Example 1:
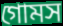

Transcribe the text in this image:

গোমস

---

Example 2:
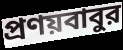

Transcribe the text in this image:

প্রণয়বাবুর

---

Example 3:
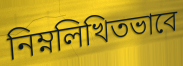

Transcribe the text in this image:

নিম্নলিখিতভাবে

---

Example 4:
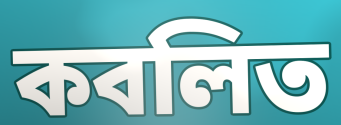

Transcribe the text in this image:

কবলিত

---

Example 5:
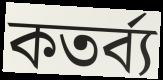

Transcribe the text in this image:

কতর্ব্য